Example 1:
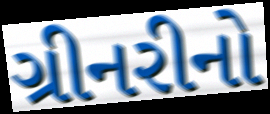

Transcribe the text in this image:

ગ્રીનરીનો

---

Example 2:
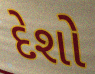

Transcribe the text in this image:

દેશો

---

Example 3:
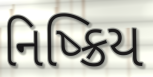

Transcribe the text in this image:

નિષ્ક્રિય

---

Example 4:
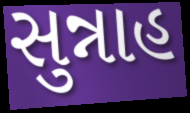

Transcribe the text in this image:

સુન્નાહ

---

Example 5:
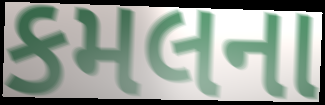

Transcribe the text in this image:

કમલના